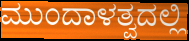
ಮುಂದಾಳತ್ವದಲ್ಲಿ